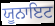
ਯੂਨਾਇਟ